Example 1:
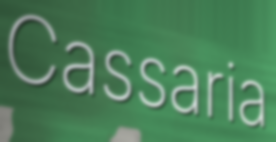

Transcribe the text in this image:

Cassaria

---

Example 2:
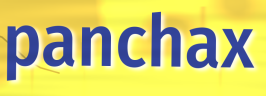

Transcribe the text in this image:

panchax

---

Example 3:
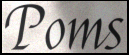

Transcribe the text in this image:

Poms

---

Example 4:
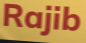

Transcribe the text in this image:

Rajib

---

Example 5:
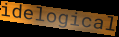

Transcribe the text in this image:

idelogical